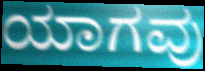
ಯಾಗವು